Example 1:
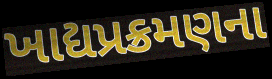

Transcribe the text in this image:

ખાદ્યપ્રક્રમણના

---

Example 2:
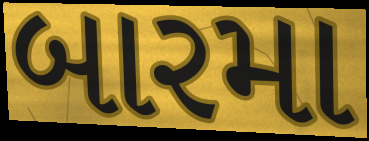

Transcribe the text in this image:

બારમા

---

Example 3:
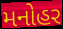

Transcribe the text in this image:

મનોહર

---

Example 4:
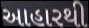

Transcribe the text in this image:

આહારથી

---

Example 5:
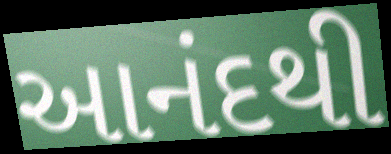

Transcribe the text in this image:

આનંદથી